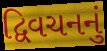
દ્વિવચનનું